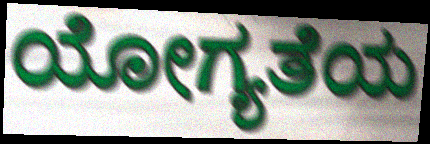
ಯೋಗ್ಯತೆಯ